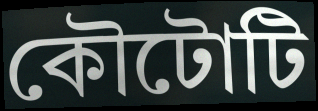
কৌটোটি